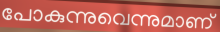
പോകുന്നുവെന്നുമാണ്